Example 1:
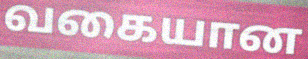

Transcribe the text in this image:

வகையான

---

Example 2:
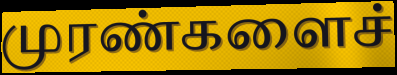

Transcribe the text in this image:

முரண்களைச்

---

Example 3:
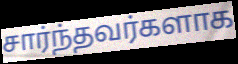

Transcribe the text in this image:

சார்ந்தவர்களாக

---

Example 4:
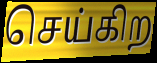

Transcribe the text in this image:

செய்கிற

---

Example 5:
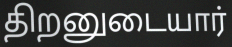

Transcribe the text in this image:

திறனுடையார்